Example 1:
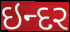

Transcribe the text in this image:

ઇન્દર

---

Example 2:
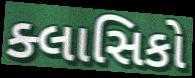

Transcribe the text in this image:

ક્લાસિકો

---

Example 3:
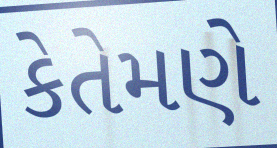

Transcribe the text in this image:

કેતેમણે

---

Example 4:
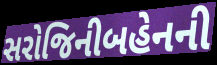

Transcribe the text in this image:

સરોજિનીબહેનની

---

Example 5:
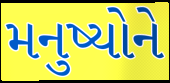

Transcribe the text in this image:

મનુષ્યોને